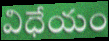
విధేయం